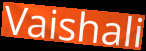
Vaishali